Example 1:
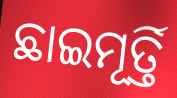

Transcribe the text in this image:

ଛାଇମୂର୍ତ୍ତି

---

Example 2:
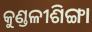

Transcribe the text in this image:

କୁଣ୍ଡଳୀଶିଙ୍ଗା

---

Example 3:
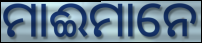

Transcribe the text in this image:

ମାଈମାନେ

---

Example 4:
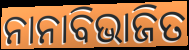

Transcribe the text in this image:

ନାନାବିଭାଜିତ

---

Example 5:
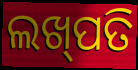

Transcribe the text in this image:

ଲଖ୍‌ପତି